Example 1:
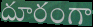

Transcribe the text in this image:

దూరంగా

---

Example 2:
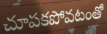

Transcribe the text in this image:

చూపకపోవటంతో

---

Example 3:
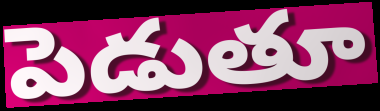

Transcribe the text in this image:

పెడుతూ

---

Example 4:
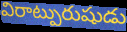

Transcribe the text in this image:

విరాట్పురుషుడు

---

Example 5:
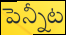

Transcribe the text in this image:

పెన్నీట